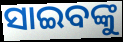
ସାଇବଙ୍କୁ